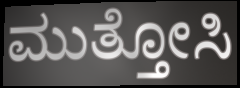
ಮುತ್ತೋಸಿ